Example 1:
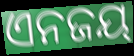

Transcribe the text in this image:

ଏନଜୟ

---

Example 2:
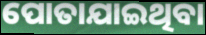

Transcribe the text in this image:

ପୋତାଯାଇଥିବା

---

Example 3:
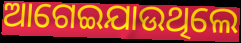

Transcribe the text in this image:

ଆଗେଇଯାଉଥିଲେ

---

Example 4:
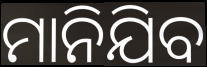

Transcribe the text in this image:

ମାନିଯିବ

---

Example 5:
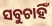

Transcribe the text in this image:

ସବୁଚାହିଁ